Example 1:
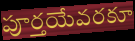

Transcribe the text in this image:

పూర్తయేవరకూ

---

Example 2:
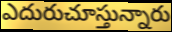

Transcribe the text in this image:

ఎదురుచూస్తున్నారు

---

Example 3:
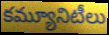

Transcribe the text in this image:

కమ్యూనిటీలు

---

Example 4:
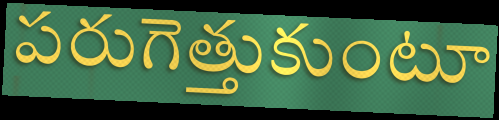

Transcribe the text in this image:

పరుగెత్తుకుంటూ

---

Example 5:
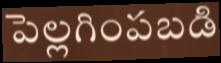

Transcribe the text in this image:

పెల్లగింపబడి